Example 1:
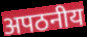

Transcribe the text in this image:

अपठनीय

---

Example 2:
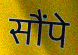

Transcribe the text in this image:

सौंपे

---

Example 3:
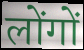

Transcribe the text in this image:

लोंगों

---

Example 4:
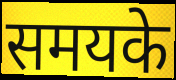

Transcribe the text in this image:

समयके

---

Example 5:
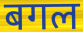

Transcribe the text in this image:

बगल